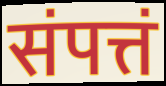
संपत्तं